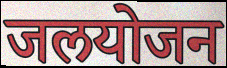
जलयोजन